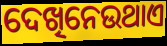
ଦେଖିନେଉଥାଏ